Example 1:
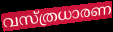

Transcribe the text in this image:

വസ്ത്രധാരണ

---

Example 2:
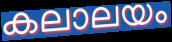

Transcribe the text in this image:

കലാലയം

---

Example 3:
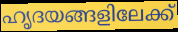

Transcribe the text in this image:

ഹൃദയങ്ങളിലേക്ക്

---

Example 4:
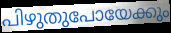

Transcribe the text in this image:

പിഴുതുപോയേക്കും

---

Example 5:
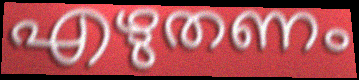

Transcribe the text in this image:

എഴുതണം